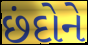
છંદોને